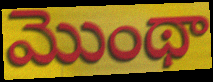
మొంథా